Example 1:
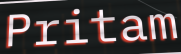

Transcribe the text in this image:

Pritam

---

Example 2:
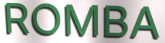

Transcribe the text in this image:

ROMBA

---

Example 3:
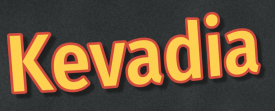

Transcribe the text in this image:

Kevadia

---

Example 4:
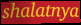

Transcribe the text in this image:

shalatnya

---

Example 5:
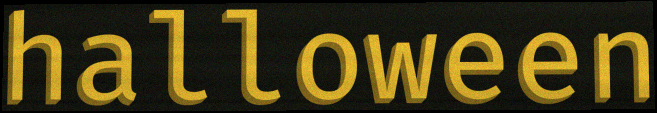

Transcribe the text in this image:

halloween